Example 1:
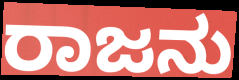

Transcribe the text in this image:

ರಾಜನು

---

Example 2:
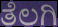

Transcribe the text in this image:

ತೆಲಗಿ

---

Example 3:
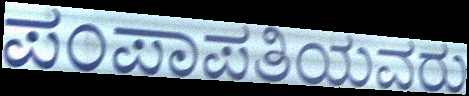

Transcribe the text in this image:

ಪಂಪಾಪತಿಯವರು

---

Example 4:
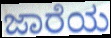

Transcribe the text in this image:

ಜಾರೆಯ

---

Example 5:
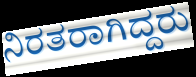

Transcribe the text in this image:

ನಿರತರಾಗಿದ್ದರು